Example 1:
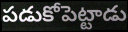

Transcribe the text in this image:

పడుకోపెట్టాడు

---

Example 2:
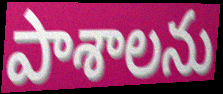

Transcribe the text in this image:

పాశాలను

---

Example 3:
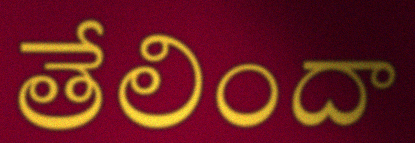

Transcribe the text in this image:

తేలిందా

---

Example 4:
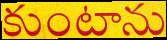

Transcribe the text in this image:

కుంటాను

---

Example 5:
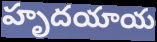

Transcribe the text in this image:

హృదయాయ